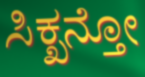
ಸಿಕ್ಖನ್ತೋ